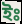
ইঃ